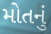
મોતનું